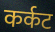
कर्कट